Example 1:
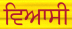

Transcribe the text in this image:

ਵਿਆਸੀ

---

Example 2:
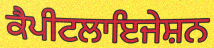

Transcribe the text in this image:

ਕੈਪੀਟਲਾਇਜੇਸ਼ਨ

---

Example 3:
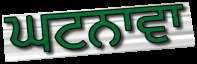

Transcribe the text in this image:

ਘਟਨਾਵਾ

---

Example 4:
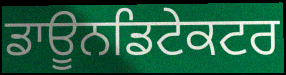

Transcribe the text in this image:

ਡਾਊਨਡਿਟੇਕਟਰ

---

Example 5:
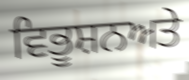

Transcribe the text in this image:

ਵਿਭੂਸ਼ਨਅਤੇ